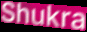
Shukra